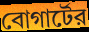
বোগার্টের